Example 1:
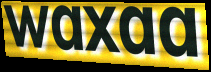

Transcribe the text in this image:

waxaa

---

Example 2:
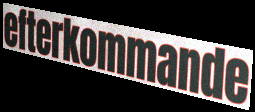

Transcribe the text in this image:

efterkommande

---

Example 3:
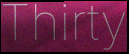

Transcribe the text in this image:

Thirty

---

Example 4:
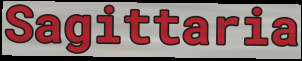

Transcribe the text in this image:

Sagittaria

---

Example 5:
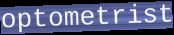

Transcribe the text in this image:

optometrist